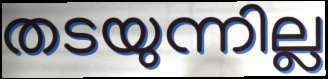
തടയുന്നില്ല